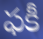
ఫకీ